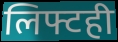
लिफ्टही